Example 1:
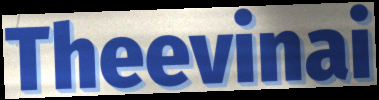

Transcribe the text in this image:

Theevinai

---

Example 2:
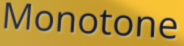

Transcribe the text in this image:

Monotone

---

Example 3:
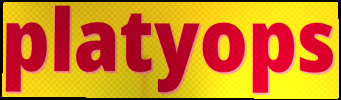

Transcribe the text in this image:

platyops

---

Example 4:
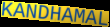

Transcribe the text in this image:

KANDHAMAL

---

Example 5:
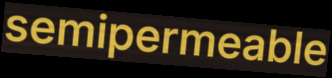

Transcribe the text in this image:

semipermeable